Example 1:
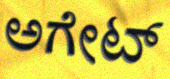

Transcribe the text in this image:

ಅಗೇಟ್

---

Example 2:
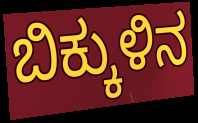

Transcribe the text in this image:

ಬಿಕ್ಕುಳಿನ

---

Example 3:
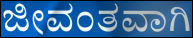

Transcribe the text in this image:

ಜೀವಂತವಾಗಿ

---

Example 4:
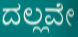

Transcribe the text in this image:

ದಲ್ಲವೇ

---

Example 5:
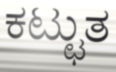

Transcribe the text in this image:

ಕಟ್ಟುತ